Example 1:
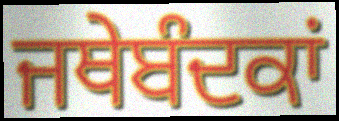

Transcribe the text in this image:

ਜਥੇਬੰਦਕਾਂ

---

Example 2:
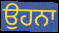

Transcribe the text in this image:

ਉਹਨਾ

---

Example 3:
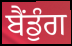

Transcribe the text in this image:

ਬੈਂਡੁੰਗ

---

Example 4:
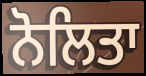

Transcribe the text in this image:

ਨੋਲਿਤਾ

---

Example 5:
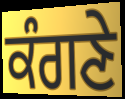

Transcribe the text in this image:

ਕੰਗਣੇ